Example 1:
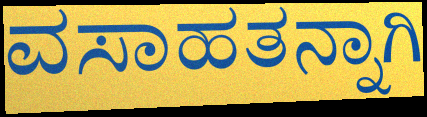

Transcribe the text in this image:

ವಸಾಹತನ್ನಾಗಿ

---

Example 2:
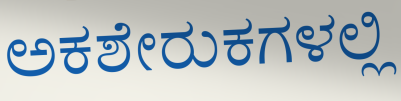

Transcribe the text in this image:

ಅಕಶೇರುಕಗಳಲ್ಲಿ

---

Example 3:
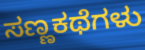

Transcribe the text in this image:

ಸಣ್ಣಕಥೆಗಳು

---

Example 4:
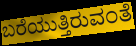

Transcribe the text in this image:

ಬರೆಯುತ್ತಿರುವಂತೆ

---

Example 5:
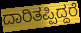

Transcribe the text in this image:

ದಾರಿತಪ್ಪಿದ್ದರೆ